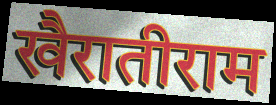
खैरातीराम